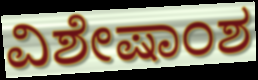
ವಿಶೇಷಾಂಶ